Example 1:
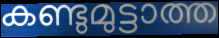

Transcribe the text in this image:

കണ്ടുമുട്ടാത്ത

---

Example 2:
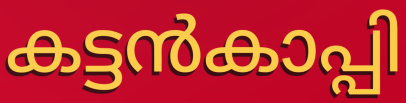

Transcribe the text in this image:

കട്ടൻകാപ്പി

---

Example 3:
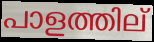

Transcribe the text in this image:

പാളത്തില്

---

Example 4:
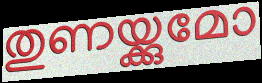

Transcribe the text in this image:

തുണയ്ക്കുമോ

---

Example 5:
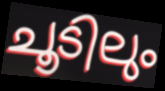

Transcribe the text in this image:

ചൂടിലും